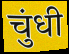
चुंधी